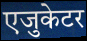
एजुकेटर